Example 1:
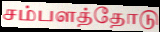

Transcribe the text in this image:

சம்பளத்தோடு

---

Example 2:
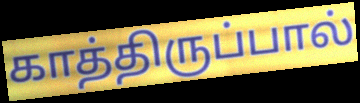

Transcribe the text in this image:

காத்திருப்பால்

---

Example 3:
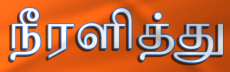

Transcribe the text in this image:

நீரளித்து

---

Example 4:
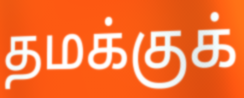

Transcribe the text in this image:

தமக்குக்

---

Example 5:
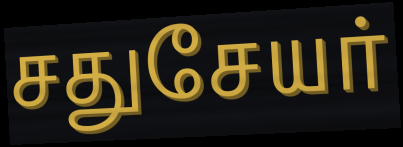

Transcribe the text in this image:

சதுசேயர்